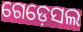
ଗେଡ଼େସଲ